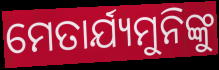
ମେତାର୍ଯ୍ୟମୁନିଙ୍କୁ